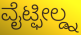
ವೈಟ್ಫೀಲ್ಡ್ನ